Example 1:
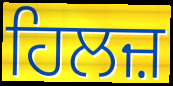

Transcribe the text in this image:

ਹਿਲਜ਼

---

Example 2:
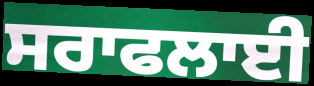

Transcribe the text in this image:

ਸਰਾਫਲਾਈ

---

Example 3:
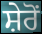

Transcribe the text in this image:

ਸ਼ੇਰੋਂ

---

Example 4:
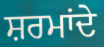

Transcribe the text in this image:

ਸ਼ਰਮਾਂਦੇ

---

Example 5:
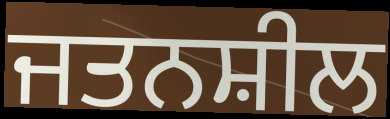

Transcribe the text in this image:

ਜਤਨਸ਼ੀਲ